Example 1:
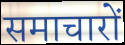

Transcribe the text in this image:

समाचारों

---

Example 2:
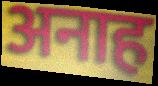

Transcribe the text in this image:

अनाह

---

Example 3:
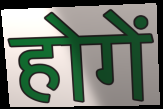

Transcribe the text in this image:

होगें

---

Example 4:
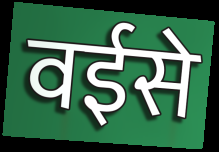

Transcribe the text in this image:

वईसे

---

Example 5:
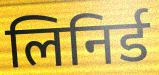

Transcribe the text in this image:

लिनिर्ड